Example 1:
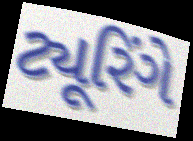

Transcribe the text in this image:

ટ્યૂરિંગે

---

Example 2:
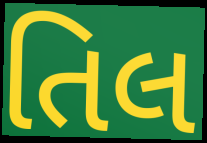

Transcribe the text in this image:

તિલ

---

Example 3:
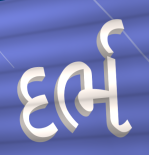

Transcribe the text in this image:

દર્ભ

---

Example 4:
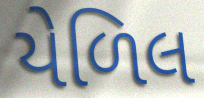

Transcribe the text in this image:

યેળિલ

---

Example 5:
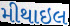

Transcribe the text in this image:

મીથાઇલ